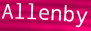
Allenby